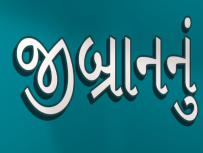
જીબ્રાનનું